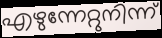
എഴുന്നേറ്റുനിന്ന്